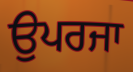
ਉਪਰਜਾ